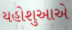
યહોશુઆએ